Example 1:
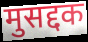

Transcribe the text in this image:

मुसद्दक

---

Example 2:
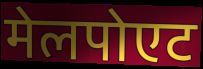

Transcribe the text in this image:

मेलपोएट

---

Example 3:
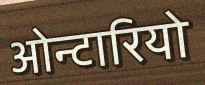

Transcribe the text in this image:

ओन्टारियो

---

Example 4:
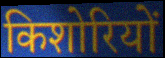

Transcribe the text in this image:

किशोरियों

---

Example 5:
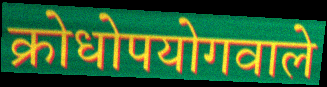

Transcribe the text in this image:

क्रोधोपयोगवाले